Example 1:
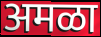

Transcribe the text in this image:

अमळा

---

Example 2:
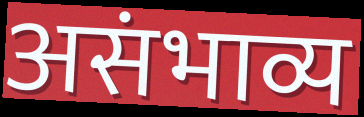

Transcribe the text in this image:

असंभाव्य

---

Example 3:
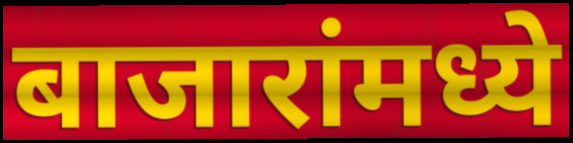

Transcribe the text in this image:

बाजारांमध्ये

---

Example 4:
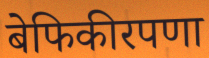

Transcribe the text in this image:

बेफिकीरपणा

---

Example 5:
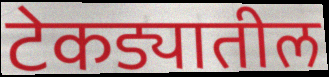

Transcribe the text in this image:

टेकड्यातील